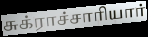
சுக்ராச்சாரியார்